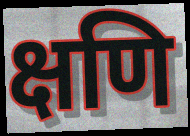
क्षणि